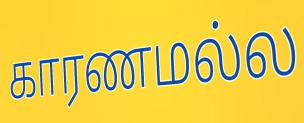
காரணமல்ல